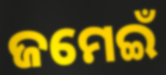
ଜମେଇଁ